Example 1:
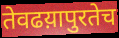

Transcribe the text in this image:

तेवढय़ापुरतेच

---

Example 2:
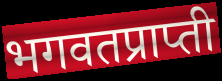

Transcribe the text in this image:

भगवतप्राप्ती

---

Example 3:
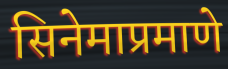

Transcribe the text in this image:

सिनेमाप्रमाणे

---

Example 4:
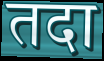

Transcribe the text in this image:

तदा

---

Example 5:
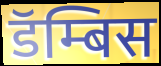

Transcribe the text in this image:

डॅम्बिस